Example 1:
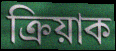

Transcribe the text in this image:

ক্ৰিয়াক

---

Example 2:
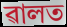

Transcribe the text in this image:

ৱালত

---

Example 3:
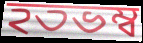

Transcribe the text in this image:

হতভম্ব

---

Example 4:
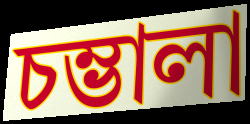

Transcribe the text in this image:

চম্ভালা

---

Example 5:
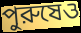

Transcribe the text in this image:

পুৰুষেও